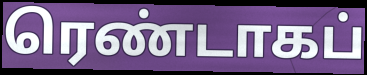
ரெண்டாகப்